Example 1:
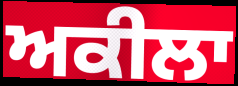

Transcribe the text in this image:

ਅਕੀਲਾ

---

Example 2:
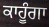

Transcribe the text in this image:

ਕਾਹੂੰਗਾ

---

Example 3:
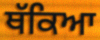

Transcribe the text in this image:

ਥੱਕਿਆ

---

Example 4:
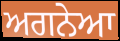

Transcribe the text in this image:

ਅਗਨੇਆ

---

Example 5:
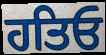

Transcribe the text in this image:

ਹਤਿਓ